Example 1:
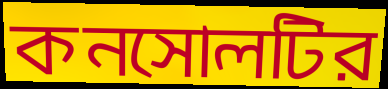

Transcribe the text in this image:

কনসোলটির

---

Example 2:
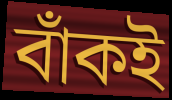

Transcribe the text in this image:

বাঁকই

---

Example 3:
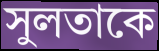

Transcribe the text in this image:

সুলতাকে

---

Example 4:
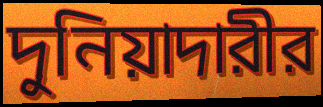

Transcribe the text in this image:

দুনিয়াদারীর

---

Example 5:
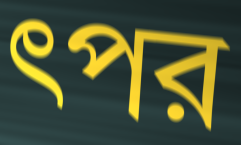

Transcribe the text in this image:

ৎপর